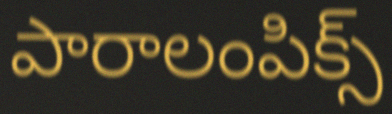
పారాలంపిక్స్